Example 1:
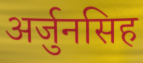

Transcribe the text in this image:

अर्जुनसिह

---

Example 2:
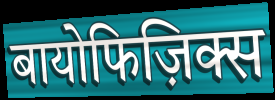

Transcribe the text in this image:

बायोफिज़िक्स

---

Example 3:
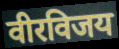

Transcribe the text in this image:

वीरविजय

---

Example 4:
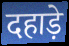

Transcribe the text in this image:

दहाड़े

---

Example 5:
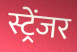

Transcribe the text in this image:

स्ट्रेंजर